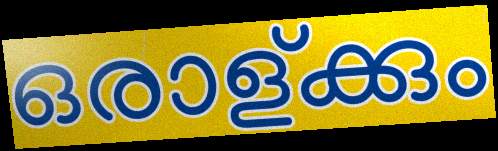
ഒരാള്ക്കും